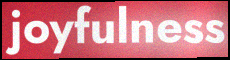
joyfulness